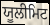
ਯੂਲੀਮਿਟ